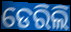
ଡେରିଲି